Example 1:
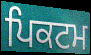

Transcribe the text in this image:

ਪਿਕਟਮ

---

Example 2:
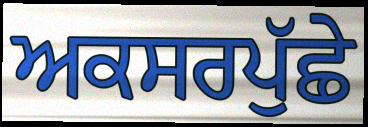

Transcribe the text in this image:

ਅਕਸਰਪੁੱਛੇ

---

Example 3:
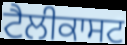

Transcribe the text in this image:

ਟੈਲੀਕਾਸਟ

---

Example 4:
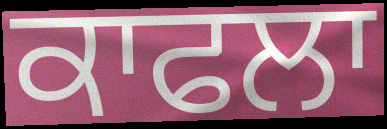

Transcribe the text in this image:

ਕਾਫਲਾ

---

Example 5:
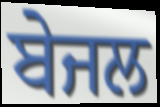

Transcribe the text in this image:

ਬੇਜਲ